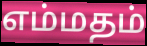
எம்மதம்